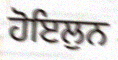
ਹੋਇਲੁਨ